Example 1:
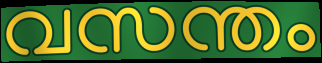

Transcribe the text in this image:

വസന്തം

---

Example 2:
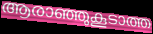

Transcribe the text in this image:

ആരാഞ്ഞുകൂടാത്ത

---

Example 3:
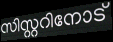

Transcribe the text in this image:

സിസ്റ്ററിനോട്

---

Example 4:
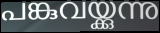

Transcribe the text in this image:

പങ്കുവയ്ക്കുന്നു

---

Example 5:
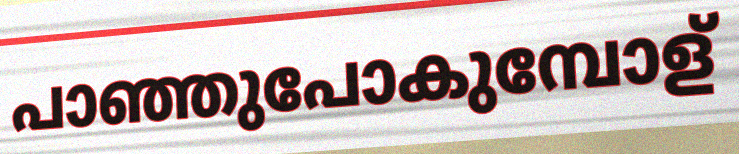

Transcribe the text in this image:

പാഞ്ഞുപോകുമ്പോള്